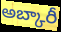
అబ్కారీ